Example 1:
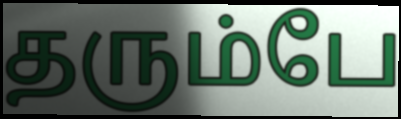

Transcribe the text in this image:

தரும்பே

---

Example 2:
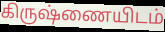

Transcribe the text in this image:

கிருஷ்ணையிடம்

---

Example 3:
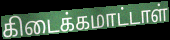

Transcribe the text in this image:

கிடைக்கமாட்டாள்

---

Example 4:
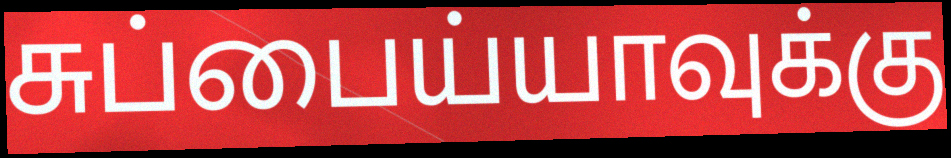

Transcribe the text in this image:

சுப்பைய்யாவுக்கு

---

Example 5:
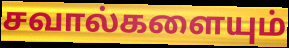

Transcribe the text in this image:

சவால்களையும்